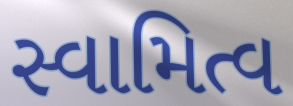
સ્વામિત્વ